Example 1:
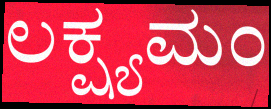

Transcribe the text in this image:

ಲಕ್ಷ್ಯಮಂ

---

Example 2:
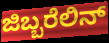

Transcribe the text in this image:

ಜಿಬ್ಬರೆಲಿನ್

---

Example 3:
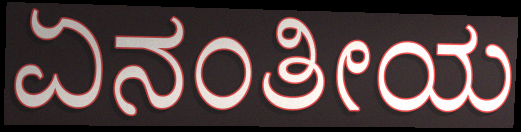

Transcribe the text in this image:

ಏನಂತೀಯ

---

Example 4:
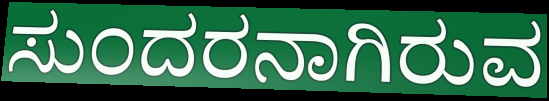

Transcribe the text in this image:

ಸುಂದರನಾಗಿರುವ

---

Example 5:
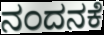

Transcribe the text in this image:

ನಂದನಕೆ